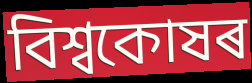
বিশ্বকোষৰ